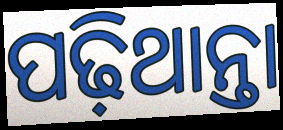
ପଢ଼ିଥାନ୍ତା